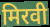
मिरवी